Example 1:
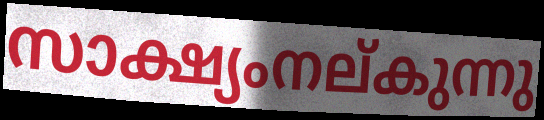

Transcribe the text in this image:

സാക്ഷ്യംനല്കുന്നു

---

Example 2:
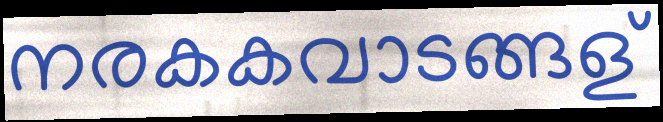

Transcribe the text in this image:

നരകകവാടങ്ങള്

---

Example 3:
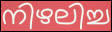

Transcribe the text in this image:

നിഴലിച്ച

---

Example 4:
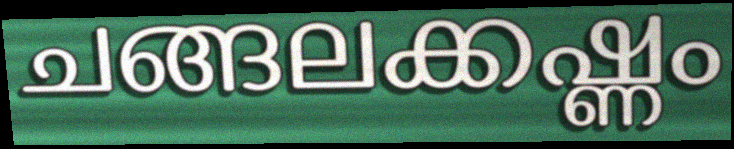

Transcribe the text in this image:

ചങ്ങലക്കഷ്ണം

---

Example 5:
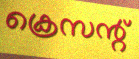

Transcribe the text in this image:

ക്രെസന്റ്